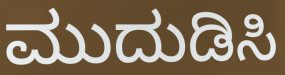
ಮುದುಡಿಸಿ